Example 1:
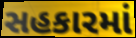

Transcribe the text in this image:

સહકારમાં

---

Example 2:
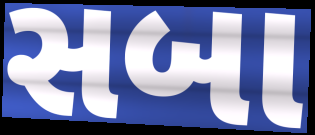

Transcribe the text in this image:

સબા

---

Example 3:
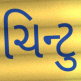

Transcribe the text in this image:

ચિન્ટુ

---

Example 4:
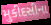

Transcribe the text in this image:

મુકીદસીના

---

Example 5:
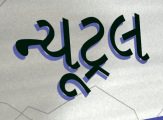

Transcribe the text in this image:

ન્યૂટ્રલ